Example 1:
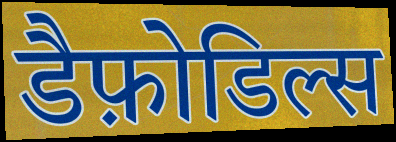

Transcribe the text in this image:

डैफ़ोडिल्स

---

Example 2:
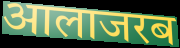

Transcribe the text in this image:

आलाजरब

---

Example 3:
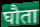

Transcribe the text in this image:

घौता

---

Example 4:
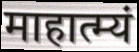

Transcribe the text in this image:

माहात्म्यं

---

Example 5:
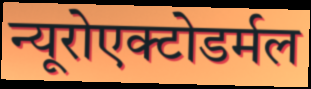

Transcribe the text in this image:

न्यूरोएक्टोडर्मल